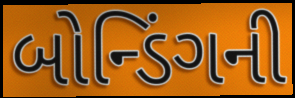
બોન્ડિંગની